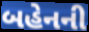
બહેનની